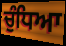
ਚੁੰਧਿਆ